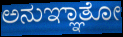
ಅನುಞ್ಞಾತೋ